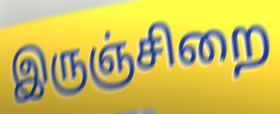
இருஞ்சிறை